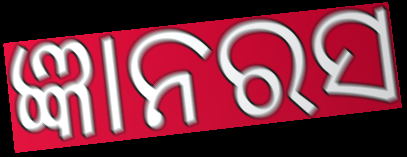
ଜ୍ଞାନରସ